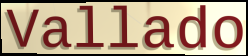
Vallado